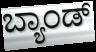
ಬ್ಯಾಂಡ್